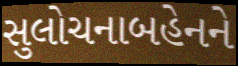
સુલોચનાબહેનને